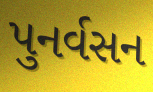
પુનર્વસન